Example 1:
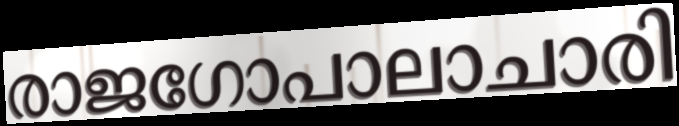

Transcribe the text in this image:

രാജഗോപാലാചാരി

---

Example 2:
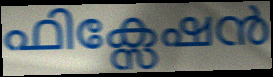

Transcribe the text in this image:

ഫിക്സേഷൻ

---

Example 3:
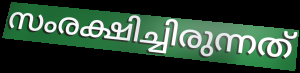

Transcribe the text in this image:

സംരക്ഷിച്ചിരുന്നത്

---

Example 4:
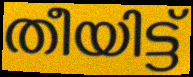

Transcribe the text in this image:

തീയിട്ട്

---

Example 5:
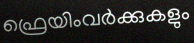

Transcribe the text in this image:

ഫ്രെയിംവർക്കുകളും